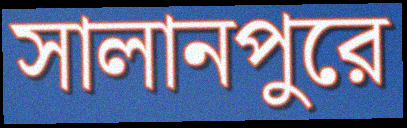
সালানপুরে